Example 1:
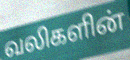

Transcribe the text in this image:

வலிகளின்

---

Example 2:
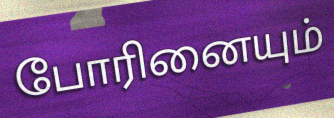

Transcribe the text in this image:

போரினையும்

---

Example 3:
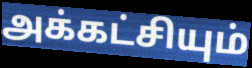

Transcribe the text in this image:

அக்கட்சியும்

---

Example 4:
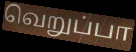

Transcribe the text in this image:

வெறுப்பா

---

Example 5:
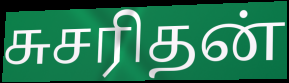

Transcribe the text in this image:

சுசரிதன்